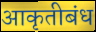
आकृतीबंध